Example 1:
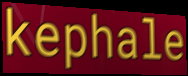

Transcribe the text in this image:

kephale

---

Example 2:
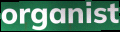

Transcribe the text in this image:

organist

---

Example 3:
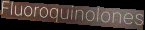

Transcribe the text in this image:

Fluoroquinolones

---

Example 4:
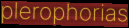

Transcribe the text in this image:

plerophorias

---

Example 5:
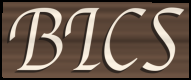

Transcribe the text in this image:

BICS